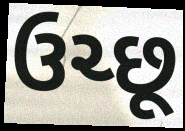
ઉચ્છૂ